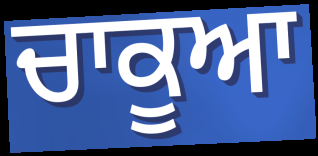
ਚਾਕੂਆ